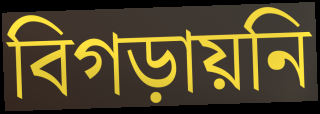
বিগড়ায়নি